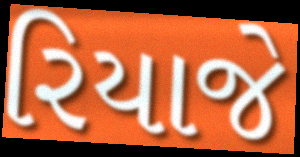
રિયાજે